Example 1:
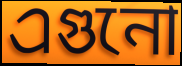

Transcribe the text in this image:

এগুনো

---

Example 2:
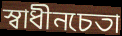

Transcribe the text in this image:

স্বাধীনচেতা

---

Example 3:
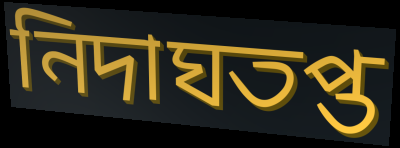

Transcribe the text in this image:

নিদাঘতপ্ত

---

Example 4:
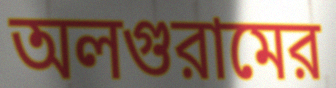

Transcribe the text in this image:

অলগুরামের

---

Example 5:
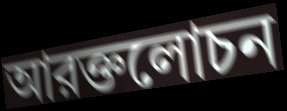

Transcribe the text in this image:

আরক্তলোচন